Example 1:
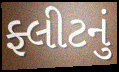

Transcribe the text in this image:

ફ્લીટનું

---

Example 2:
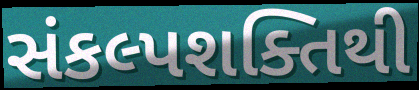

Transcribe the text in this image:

સંકલ્પશક્તિથી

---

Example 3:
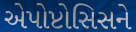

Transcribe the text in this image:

એપોપ્ટોસિસને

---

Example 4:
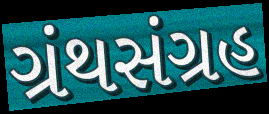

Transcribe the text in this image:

ગ્રંથસંગ્રહ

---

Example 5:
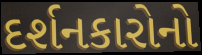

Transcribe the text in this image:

દર્શનકારોનો